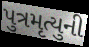
પુત્રમૃત્યુની